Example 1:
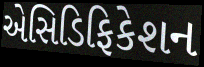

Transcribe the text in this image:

એસિડિફિકેશન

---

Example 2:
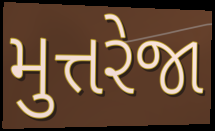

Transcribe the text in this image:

મુત્તરેજા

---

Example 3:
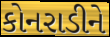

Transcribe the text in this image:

કોનરાડીને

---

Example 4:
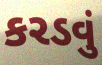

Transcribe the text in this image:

કરડવું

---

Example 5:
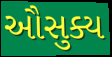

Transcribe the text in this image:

ઔસુક્ય